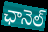
ఛానెల్